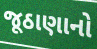
જૂઠાણાનો